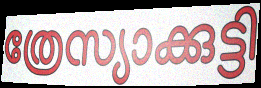
ത്രേസ്യാക്കുട്ടി